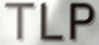
TLP